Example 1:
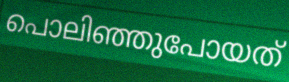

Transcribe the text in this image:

പൊലിഞ്ഞുപോയത്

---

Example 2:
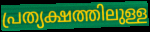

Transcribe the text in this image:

പ്രത്യക്ഷത്തിലുള്ള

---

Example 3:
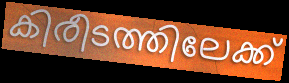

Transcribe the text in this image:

കിരീടത്തിലേക്ക്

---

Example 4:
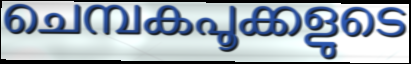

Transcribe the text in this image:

ചെമ്പകപൂക്കളുടെ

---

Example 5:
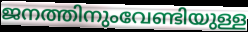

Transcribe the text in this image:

ജനത്തിനുംവേണ്ടിയുള്ള